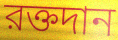
রক্তদান